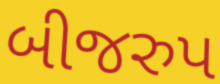
બીજરુપ